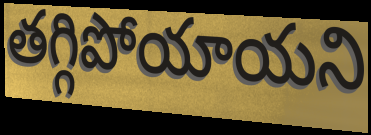
తగ్గిపోయాయని